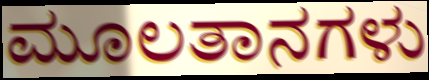
ಮೂಲತಾನಗಳು